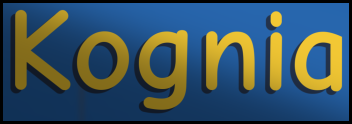
Kognia